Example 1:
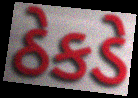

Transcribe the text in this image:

ઠેકડે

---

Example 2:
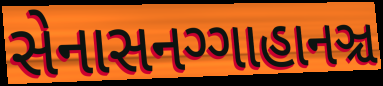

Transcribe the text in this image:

સેનાસનગ્ગાહાનઞ્ચ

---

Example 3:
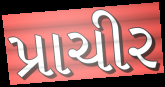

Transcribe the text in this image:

પ્રાચીર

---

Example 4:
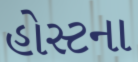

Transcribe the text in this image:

હોસ્ટના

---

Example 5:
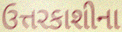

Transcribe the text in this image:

ઉત્તરકાશીના